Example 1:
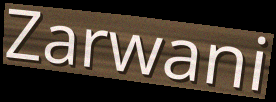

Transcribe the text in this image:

Zarwani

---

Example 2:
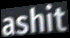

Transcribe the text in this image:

ashit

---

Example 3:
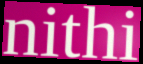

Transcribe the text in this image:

nithi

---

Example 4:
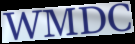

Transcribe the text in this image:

WMDC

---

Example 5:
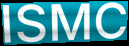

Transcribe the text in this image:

ISMC